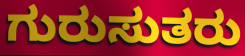
ಗುರುಸುತರು